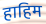
हाहिम